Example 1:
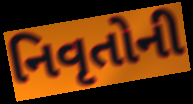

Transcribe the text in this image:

નિવૃતોની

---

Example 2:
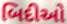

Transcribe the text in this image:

બિદીઓ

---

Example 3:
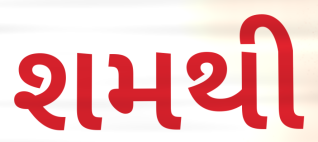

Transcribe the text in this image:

શમથી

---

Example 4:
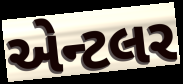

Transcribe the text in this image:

એન્ટલર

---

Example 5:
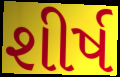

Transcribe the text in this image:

શીર્ષ